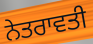
ਨੇਤਰਾਵਤੀ